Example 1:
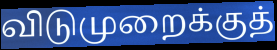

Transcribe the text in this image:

விடுமுறைக்குத்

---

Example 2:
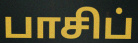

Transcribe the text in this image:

பாசிப்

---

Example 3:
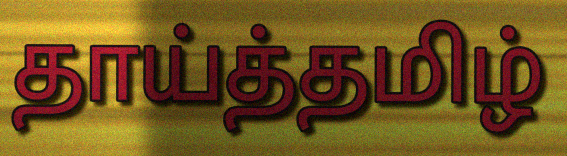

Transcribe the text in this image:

தாய்த்தமிழ்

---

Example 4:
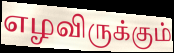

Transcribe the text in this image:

எழவிருக்கும்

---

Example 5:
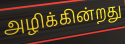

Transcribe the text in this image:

அழிக்கின்றது